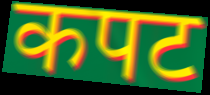
कपट